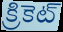
క్రికెట్